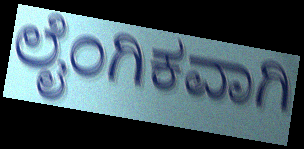
ಲೈಂಗಿಕವಾಗಿ